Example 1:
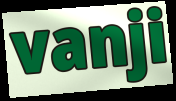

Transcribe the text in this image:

vanji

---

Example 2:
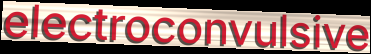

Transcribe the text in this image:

electroconvulsive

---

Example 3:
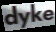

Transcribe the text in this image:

dyke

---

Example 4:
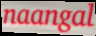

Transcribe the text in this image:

naangal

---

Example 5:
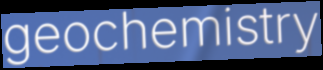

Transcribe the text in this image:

geochemistry